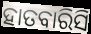
ହାତବାରିସି